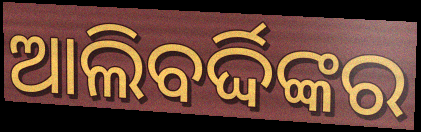
ଆଲିବର୍ଦ୍ଦିଙ୍କର